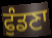
ਫੁੰਡਣਾ